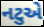
નટુએ